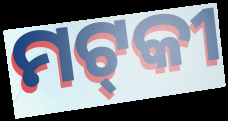
ମଟ୍‌କୀ